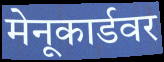
मेनूकार्डवर